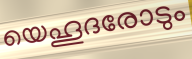
യെഹൂദരോടും